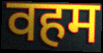
वहम